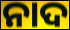
ନାଦ